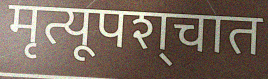
मृत्यूपश्चात